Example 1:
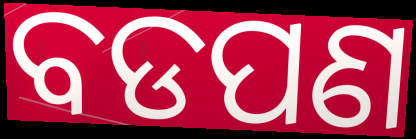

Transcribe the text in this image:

ବଡପଣ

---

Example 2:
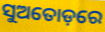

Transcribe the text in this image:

ସୁଅତୋଡ଼ରେ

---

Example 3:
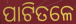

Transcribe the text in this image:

ପାଟିତଳେ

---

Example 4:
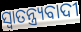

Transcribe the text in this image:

ସ୍ୱାତନ୍ତ୍ର୍ୟବାଦୀ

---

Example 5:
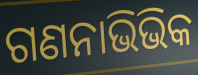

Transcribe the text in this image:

ଗଣନାଭିଭିକ